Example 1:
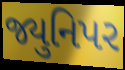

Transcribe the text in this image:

જ્યુનિપર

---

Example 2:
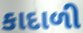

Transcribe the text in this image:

કાદાળી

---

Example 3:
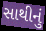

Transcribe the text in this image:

સાથીનું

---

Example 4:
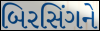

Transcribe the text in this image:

બિરસિંગને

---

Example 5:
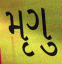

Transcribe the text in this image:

મૃગુ